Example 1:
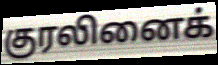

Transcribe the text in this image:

குரலினைக்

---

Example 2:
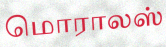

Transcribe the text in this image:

மொராலஸ்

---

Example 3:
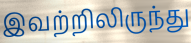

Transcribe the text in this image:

இவற்றிலிருந்து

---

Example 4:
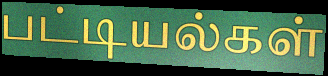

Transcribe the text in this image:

பட்டியல்கள்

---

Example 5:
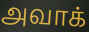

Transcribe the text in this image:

அவாக்